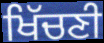
ਖਿੱਚਣੀ